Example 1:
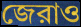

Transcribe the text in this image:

জেরাও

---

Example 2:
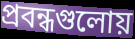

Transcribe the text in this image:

প্রবন্ধগুলোয়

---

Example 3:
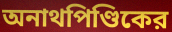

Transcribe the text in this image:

অনাথপিণ্ডিকের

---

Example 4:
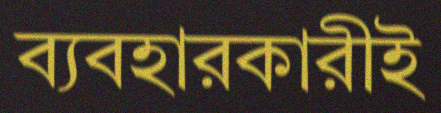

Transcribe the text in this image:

ব্যবহারকারীই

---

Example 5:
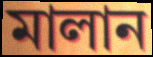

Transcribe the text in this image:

মালান